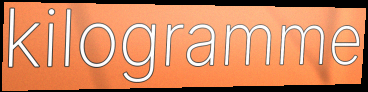
kilogramme